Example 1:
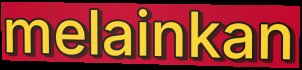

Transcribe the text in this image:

melainkan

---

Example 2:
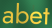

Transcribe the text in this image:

abet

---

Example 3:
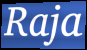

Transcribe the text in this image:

Raja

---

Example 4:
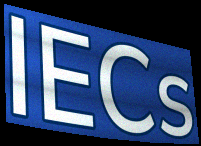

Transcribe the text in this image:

IECs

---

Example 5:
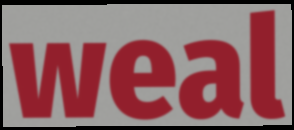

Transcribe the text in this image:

weal